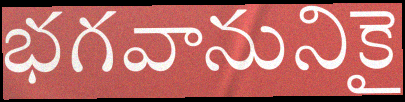
భగవానునికై